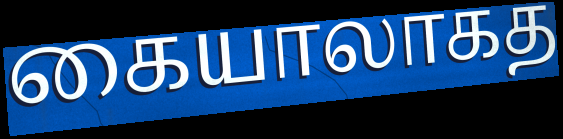
கையாலாகத